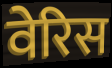
वेरिस